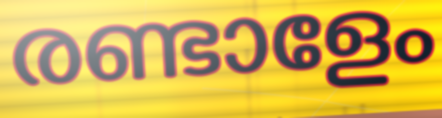
രണ്ടാളേം